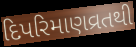
દિપરિમાણવ્રતથી